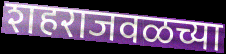
शहराजवळच्या